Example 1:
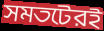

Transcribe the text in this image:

সমতটেরই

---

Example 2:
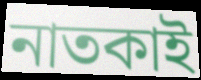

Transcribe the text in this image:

নাতকাই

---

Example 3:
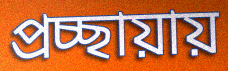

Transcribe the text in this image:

প্রচ্ছায়ায়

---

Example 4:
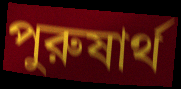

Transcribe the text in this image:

পুরুষার্থ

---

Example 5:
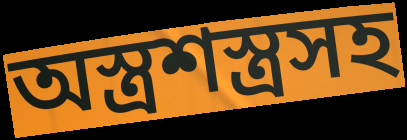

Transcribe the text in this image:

অস্ত্রশস্ত্রসহ